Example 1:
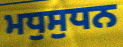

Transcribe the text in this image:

ਮਧੁਸੁਧਨ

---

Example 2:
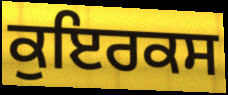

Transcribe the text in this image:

ਕੁਇਰਕਸ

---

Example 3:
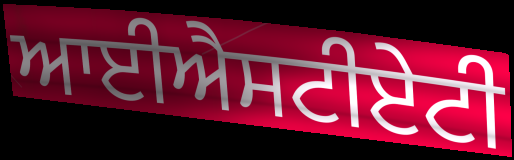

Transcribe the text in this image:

ਆਈਐਸਟੀਏਟੀ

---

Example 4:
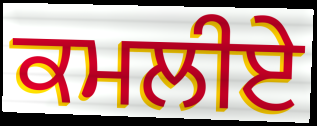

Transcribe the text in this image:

ਕਮਲੀਏ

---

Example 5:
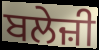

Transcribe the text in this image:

ਬਲੇਜ਼ੀ